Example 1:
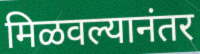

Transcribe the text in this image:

मिळवल्यानंतर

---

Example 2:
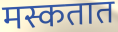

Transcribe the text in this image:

मस्कतात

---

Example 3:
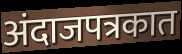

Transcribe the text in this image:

अंदाजपत्रकात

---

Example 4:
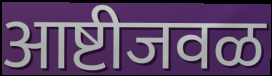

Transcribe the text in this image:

आष्टीजवळ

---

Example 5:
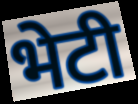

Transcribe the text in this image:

भेटी